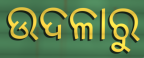
ଉଦଳାରୁ